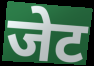
जेट